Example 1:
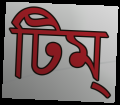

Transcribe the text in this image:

টিম্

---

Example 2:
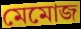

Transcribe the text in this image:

মেমোজ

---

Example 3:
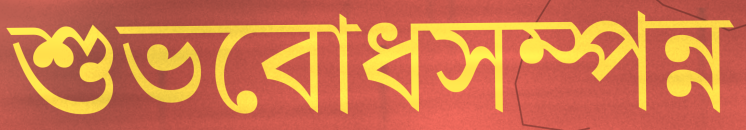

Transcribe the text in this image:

শুভবোধসম্পন্ন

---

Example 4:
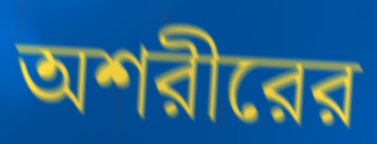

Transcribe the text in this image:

অশরীরের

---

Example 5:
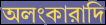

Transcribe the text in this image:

অলংকারাদি